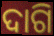
ଦାଗି